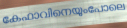
കേഫാവിനെയുംപോലെ